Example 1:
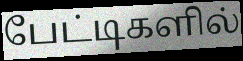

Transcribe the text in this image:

பேட்டிகளில்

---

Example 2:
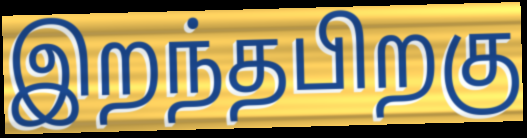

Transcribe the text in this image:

இறந்தபிறகு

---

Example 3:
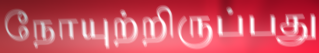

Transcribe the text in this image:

நோயுற்றிருப்பது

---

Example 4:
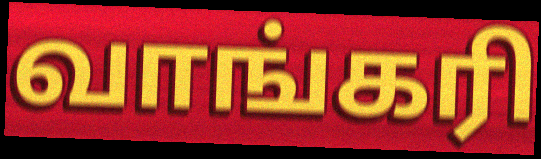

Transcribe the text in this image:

வாங்கரி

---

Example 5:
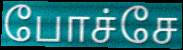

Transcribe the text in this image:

போச்சே